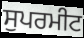
ਸੁਪਰਮੀਟ